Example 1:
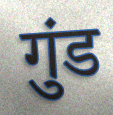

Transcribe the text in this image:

गुंड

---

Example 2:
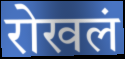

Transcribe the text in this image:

रोखलं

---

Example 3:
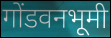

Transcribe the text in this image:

गोंडवनभूमी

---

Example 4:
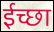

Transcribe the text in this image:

ईच्छा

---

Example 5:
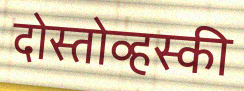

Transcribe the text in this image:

दोस्तोव्हस्की